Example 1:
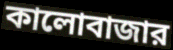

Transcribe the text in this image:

কালোবাজার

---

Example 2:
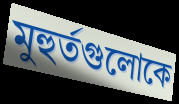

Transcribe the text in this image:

মুহুর্তগুলোকে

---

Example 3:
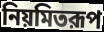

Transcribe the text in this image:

নিয়মিতরূপ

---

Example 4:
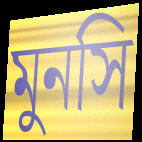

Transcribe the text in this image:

মুনসি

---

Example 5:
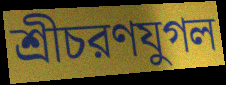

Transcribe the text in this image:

শ্রীচরণযুগল